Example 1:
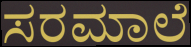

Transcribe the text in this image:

ಸರಮಾಲೆ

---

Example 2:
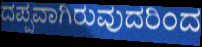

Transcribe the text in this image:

ದಪ್ಪವಾಗಿರುವುದರಿಂದ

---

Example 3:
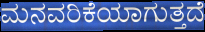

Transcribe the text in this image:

ಮನವರಿಕೆಯಾಗುತ್ತದೆ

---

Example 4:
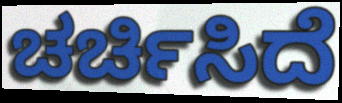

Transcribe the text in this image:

ಚರ್ಚಿಸಿದೆ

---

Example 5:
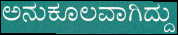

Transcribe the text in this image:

ಅನುಕೂಲವಾಗಿದ್ದು